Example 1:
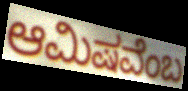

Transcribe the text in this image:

ಆಮಿಷವೆಂಬ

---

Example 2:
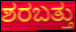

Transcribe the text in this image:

ಶರಬತ್ತು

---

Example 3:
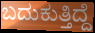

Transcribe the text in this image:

ಬದುಕುತ್ತಿದ್ದೆ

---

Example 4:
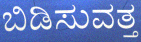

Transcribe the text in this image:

ಬಿಡಿಸುವತ್ತ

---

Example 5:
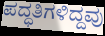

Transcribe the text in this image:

ಪದ್ಧತಿಗಳಿದ್ದವು